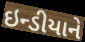
ઇન્ડીયાને